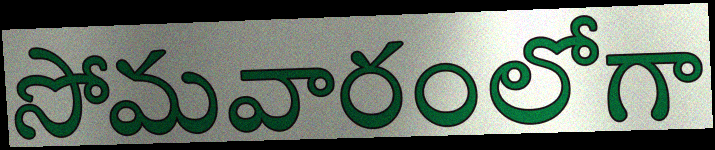
సోమవారంలోగా